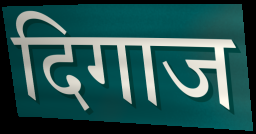
दिगाज